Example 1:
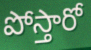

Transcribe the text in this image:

పోస్తారో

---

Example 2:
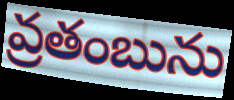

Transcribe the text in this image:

వ్రతంబును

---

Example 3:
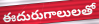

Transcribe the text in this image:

ఈదురుగాలులతో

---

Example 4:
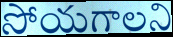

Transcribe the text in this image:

సోయగాలని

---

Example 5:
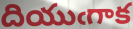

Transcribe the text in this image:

దియుఁగాక